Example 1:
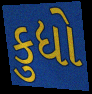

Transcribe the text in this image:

કુદ્યો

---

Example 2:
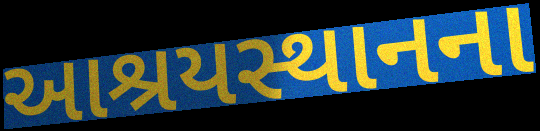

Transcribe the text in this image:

આશ્રયસ્થાનના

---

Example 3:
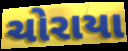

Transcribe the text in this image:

ચોરાયા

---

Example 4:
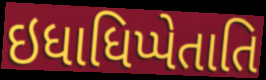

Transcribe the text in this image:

ઇધાધિપ્પેતાતિ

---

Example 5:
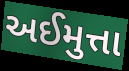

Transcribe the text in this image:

અઈમુત્તા